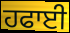
ਹਫਾਈ